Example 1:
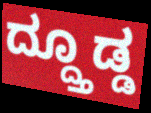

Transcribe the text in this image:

ದ್ದ್ತೂಡ್ಡ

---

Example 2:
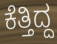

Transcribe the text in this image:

ಕೆತ್ತಿದ್ದ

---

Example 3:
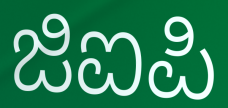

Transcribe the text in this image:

ಜಿಐಪಿ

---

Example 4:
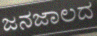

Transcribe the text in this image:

ಜನಜಾಲದ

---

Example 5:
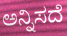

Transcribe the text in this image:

ಅನ್ನಿಸದೆ